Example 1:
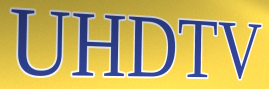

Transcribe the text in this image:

UHDTV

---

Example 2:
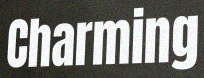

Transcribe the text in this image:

Charming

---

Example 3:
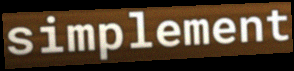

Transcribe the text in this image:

simplement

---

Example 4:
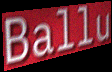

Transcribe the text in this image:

Ballu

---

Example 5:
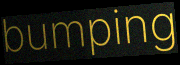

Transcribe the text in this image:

bumping